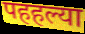
पहहल्या